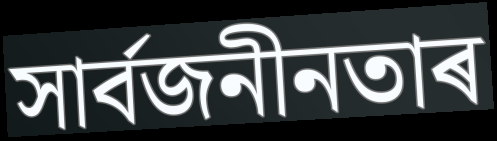
সাৰ্বজনীনতাৰ